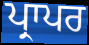
ਪ੍ਰਾਪਰ